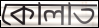
কোলাত